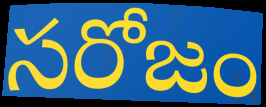
సరోజం